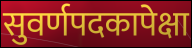
सुवर्णपदकापेक्षा